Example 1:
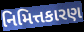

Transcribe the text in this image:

નિમિત્તકારણ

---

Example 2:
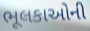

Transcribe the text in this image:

ભૂલકાઓની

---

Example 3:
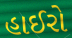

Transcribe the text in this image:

હાઈરો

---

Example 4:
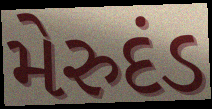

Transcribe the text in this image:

મેરુદંડ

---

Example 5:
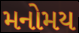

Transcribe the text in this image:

મનોમય